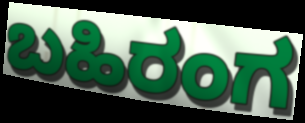
ಬಹಿರಂಗ